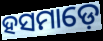
ହସମାଡ଼େ